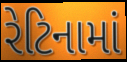
રેટિનામાં